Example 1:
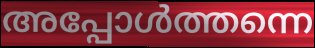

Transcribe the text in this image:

അപ്പോൾത്തന്നെ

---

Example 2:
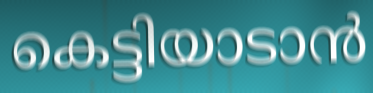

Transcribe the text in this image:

കെട്ടിയാടാൻ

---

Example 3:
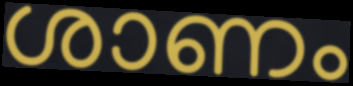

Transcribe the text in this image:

ശാണം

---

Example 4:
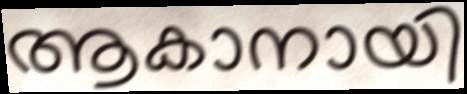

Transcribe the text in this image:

ആകാനായി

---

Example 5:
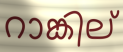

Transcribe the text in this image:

റാങ്കില്